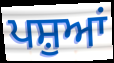
ਪਸ਼ੁਆਂ